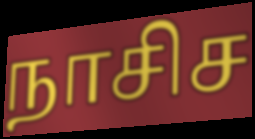
நாசிச